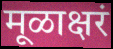
मूळाक्षरं